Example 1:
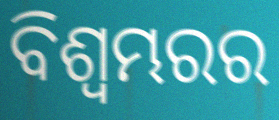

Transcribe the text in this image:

ବିଶ୍ଵମ୍ଭରର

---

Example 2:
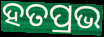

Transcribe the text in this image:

ହତପ୍ରଭ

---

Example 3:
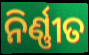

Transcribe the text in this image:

ନିର୍ଣ୍ଣୀତ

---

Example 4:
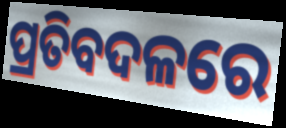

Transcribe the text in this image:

ପ୍ରତିବଦଳରେ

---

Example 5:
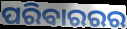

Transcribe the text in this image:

ପରିବାରରର